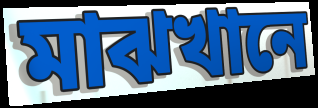
মাঝখানে